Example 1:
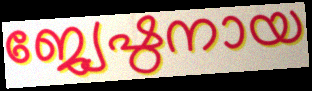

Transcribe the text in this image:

ജ്യേഷ്ഠനായ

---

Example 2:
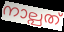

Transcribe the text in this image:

നാല്പത്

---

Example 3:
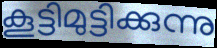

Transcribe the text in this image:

കൂട്ടിമുട്ടിക്കുന്നു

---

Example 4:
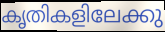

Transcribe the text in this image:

കൃതികളിലേക്കു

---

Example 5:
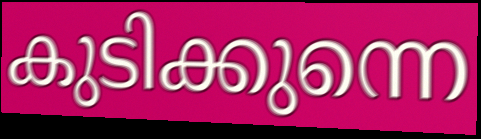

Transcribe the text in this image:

കുടിക്കുന്നെ